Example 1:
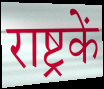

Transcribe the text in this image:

राष्ट्रकें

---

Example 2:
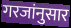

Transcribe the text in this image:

गरजांनुसार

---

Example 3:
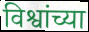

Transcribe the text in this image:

विश्वांच्या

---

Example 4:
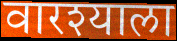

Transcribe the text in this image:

वारश्याला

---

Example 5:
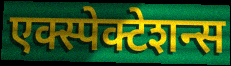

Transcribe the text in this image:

एक्स्पेक्टेशन्स